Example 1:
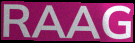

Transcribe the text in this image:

RAAG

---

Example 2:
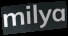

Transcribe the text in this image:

milya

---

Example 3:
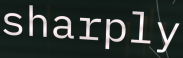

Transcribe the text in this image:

sharply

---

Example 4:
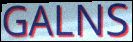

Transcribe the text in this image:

GALNS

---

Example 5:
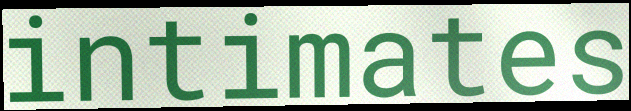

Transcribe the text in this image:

intimates